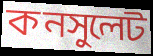
কনসুলেট